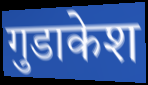
गुडाकेश